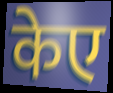
केए